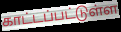
காட்டப்பட்டுள்ள